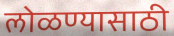
लोळण्यासाठी